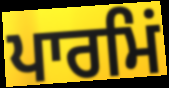
ਪਾਰਮਿਂ